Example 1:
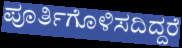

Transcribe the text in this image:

ಪೂರ್ತಿಗೊಳಿಸದಿದ್ದರೆ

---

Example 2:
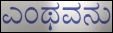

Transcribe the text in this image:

ಎಂಥವನು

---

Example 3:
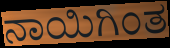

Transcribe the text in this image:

ನಾಯಿಗಿಂತ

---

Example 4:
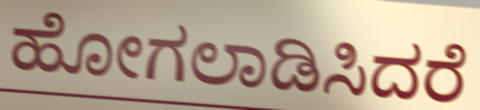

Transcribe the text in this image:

ಹೋಗಲಾಡಿಸಿದರೆ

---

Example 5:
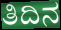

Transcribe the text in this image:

ತಿದಿನ